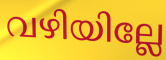
വഴിയില്ലേ